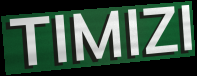
TIMIZI